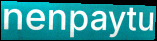
nenpaytu